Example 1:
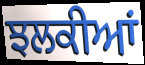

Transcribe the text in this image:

ਝਲਕੀਆਂ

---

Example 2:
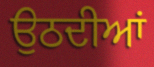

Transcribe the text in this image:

ਉਠਦੀਆਂ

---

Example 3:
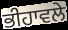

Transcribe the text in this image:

ਭੀਹਾਵਲੇ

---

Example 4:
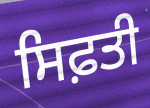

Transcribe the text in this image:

ਸਿਫ਼ਤੀ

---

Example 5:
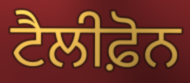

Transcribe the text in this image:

ਟੈਲੀਫ਼ੋਨ